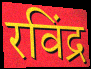
रविंद्र